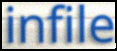
infile